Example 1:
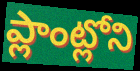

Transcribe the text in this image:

ప్లాంట్లోని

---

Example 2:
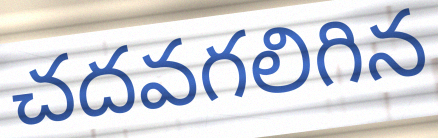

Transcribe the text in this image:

చదవగలిగిన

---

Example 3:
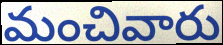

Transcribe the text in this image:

మంచివారు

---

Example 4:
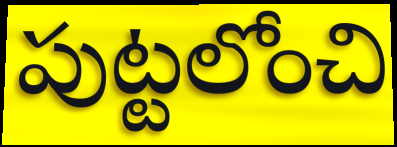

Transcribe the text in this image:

పుట్టలోంచి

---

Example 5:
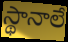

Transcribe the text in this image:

స్థానాలే